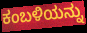
ಕಂಬಳಿಯನ್ನು